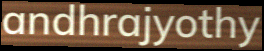
andhrajyothy